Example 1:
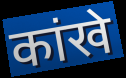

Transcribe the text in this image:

कांखे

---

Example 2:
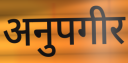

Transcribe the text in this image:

अनुपगीर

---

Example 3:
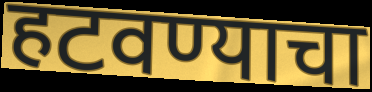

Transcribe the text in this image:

हटवण्याचा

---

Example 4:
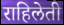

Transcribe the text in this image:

राहिलेती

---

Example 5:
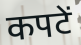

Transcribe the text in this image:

कपटें